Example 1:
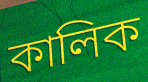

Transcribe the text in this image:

কালিক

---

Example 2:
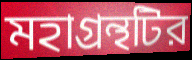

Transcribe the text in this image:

মহাগ্রন্থটির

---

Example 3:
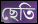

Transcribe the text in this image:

ছেতি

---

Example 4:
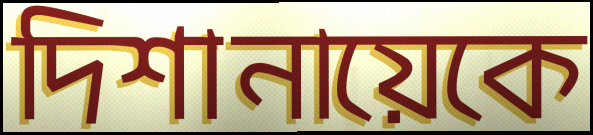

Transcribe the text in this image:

দিশানায়েকে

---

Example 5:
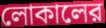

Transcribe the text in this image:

লোকালের